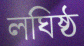
লঘিষ্ঠ